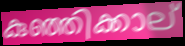
കുഞ്ഞിക്കാല്